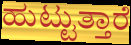
ಹುಟ್ಟುತ್ತಾರೆ